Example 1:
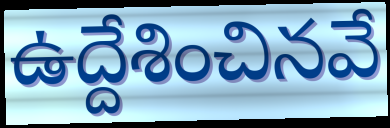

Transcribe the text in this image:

ఉద్దేశించినవే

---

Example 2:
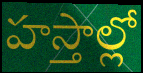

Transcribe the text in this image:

హస్తాల్లో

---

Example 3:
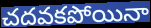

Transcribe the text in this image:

చదవకపోయినా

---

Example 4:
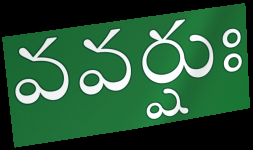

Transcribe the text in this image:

వవర్షుః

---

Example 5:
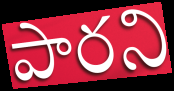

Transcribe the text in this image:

పారని